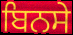
ਬਿਨਸੇ